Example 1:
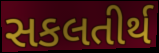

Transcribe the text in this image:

સકલતીર્થ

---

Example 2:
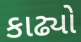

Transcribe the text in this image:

કાઢ્યો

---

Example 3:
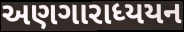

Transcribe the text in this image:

અણગારાધ્યયન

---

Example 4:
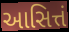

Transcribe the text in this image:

આસિત્તં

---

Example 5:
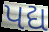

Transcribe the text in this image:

પદ્ય